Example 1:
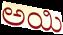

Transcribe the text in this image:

ಅಯಿ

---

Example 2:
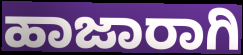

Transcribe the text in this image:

ಹಾಜಾರಾಗಿ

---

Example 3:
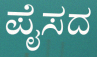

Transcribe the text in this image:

ಪೈಸದ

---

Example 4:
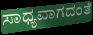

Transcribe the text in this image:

ಸಾಧ್ಯವಾಗದಂತೆ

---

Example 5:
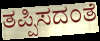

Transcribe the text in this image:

ತಪ್ಪಿಸದಂತೆ